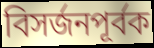
বিসর্জনপূর্বক